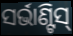
ସର୍ଭାଣ୍ଟିସ୍